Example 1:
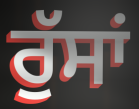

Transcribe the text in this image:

ਰੁੱਸਾਂ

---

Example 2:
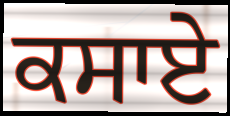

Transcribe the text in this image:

ਕਸਾਏ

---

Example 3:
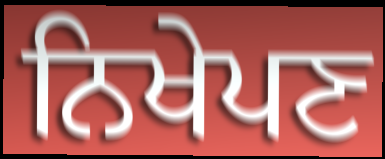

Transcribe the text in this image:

ਨਿਖੇਪਣ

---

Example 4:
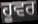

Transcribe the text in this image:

ਹੂਵਰ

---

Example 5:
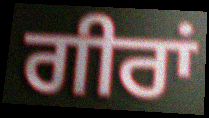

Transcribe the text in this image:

ਗੀਰਾਂ